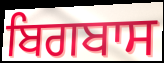
ਬਿਗਬਾਸ